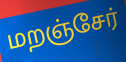
மறஞ்சேர்